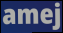
amej